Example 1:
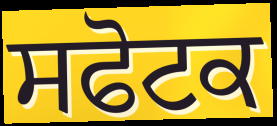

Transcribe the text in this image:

ਸਫੋਟਕ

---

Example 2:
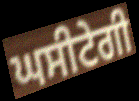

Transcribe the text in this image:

ਘਸੀਟੇਗੀ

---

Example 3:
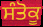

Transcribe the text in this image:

ਸੰਤੋਕੂ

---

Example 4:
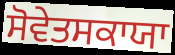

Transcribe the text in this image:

ਸੋਵੇਤਸਕਾਯਾ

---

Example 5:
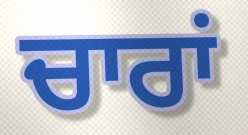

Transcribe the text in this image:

ਚਾਰਾਂ